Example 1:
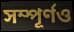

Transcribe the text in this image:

সম্পূর্ণও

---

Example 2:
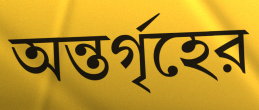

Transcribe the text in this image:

অন্তর্গৃহের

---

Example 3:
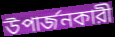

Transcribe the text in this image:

উপার্জনকারী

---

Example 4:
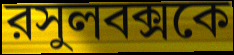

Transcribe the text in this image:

রসুলবক্সকে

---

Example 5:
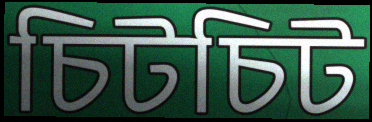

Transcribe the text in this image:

চিটচিট